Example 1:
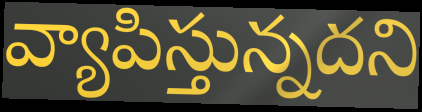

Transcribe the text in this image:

వ్యాపిస్తున్నదని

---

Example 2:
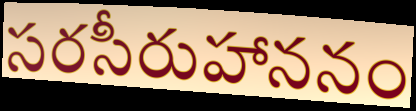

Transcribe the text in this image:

సరసీరుహాననం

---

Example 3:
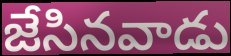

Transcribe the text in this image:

జేసినవాడు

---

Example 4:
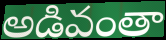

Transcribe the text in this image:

అడివంతా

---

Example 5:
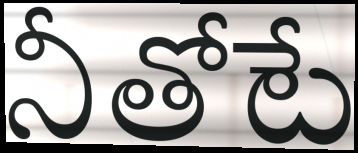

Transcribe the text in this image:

నీతోటే